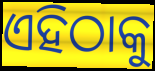
ଏହିଠାକୁ